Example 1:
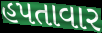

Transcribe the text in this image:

હપતાવાર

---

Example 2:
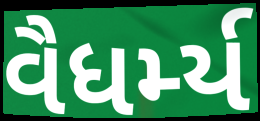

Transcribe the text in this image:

વૈધર્મ્ય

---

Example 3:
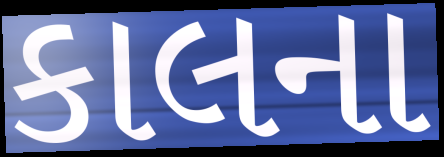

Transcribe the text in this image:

કાલના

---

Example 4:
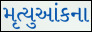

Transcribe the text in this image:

મૃત્યુઆંકના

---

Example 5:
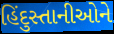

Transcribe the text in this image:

હિંદુસ્તાનીઓને